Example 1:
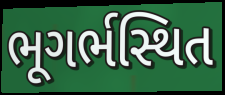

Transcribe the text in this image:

ભૂગર્ભસ્થિત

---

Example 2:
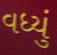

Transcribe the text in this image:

વધ્યું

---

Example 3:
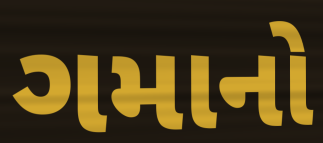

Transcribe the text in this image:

ગમાનો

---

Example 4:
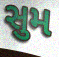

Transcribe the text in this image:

સુમ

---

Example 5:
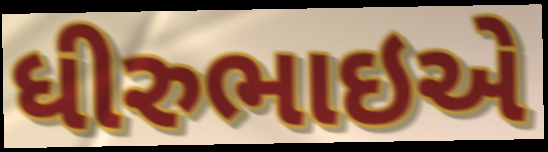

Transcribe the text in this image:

ધીરુભાઇએ